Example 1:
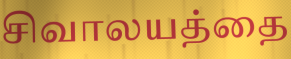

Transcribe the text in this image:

சிவாலயத்தை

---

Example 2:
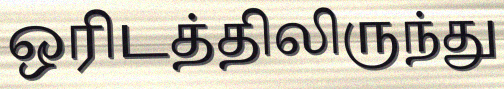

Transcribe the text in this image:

ஒரிடத்திலிருந்து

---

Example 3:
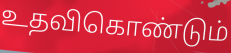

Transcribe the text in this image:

உதவிகொண்டும்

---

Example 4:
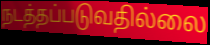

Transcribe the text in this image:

நடத்தப்படுவதில்லை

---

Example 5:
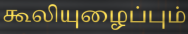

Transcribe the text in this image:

கூலியுழைப்பும்